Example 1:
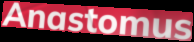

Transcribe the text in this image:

Anastomus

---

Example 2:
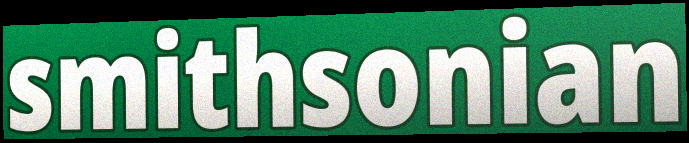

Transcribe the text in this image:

smithsonian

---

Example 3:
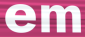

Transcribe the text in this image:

em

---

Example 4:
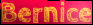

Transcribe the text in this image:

Bernice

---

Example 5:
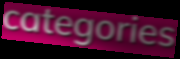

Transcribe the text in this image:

categories